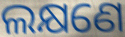
ଲକ୍ଷଣେ